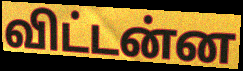
விட்டன்ன